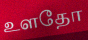
உளதோ